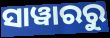
ସାୱାରରୁ